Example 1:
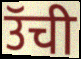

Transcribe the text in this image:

उॅची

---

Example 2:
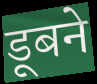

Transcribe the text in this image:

डूबने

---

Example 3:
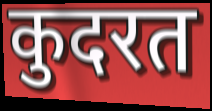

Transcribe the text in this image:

कुदरत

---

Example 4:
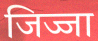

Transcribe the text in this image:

जिज्जा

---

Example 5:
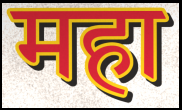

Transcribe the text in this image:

महा